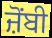
ਜ਼ੋਂਬੀ